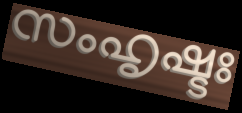
സംഹൃഷ്ടഃ